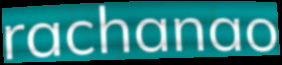
rachanao